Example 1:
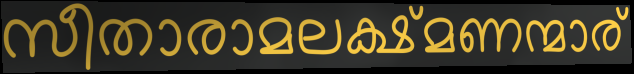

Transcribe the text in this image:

സീതാരാമലക്ഷ്മണന്മാര്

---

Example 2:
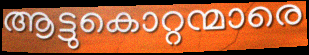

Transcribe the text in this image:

ആട്ടുകൊറ്റന്മാരെ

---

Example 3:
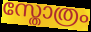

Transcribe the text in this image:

സ്തോത്രം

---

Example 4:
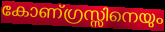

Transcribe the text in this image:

കോണ്ഗ്രസ്സിനെയും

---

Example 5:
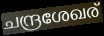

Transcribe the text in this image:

ചന്ദ്രശേഖര്